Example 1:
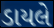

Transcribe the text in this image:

ડાયલે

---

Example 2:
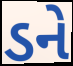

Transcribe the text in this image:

ડને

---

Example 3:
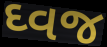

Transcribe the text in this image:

ઘ્વજ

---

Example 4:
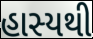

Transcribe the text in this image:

હાસ્યથી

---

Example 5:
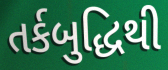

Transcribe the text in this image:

તર્કબુદ્ધિથી